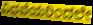
ವಿಧವೆಯರಿಂದಲೇ